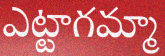
ఎట్టాగమ్మా